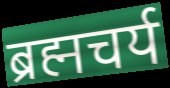
ब्रह्मचर्य